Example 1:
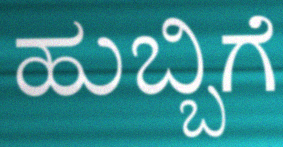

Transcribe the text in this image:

ಹುಬ್ಬಿಗೆ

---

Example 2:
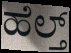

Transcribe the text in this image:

ಹೆಲ್ತ್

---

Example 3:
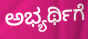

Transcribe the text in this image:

ಅಭ್ಯರ್ಥಿಗೆ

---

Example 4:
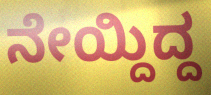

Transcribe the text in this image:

ನೇಯ್ದಿದ್ದ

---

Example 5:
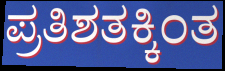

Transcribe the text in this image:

ಪ್ರತಿಶತಕ್ಕಿಂತ